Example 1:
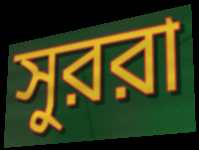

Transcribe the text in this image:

সুররা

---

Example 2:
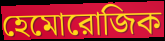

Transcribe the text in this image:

হেমোরোজিক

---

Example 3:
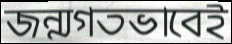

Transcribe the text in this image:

জন্মগতভাবেই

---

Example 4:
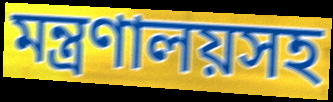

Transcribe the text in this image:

মন্ত্রণালয়সহ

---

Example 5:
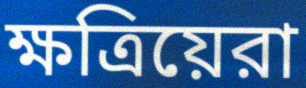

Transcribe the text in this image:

ক্ষত্রিয়েরা